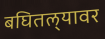
बघितल्यावर